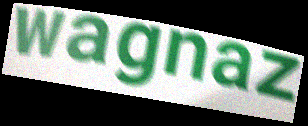
wagnaz